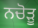
ਨਚੋੜੂ